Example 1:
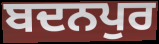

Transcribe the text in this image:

ਬਦਨਪੁਰ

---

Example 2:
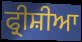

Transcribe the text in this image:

ਫ੍ਰੀਸ਼ੀਆ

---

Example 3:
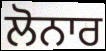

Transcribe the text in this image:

ਲੋਨਾਰ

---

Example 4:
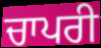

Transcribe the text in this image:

ਚਾਪਰੀ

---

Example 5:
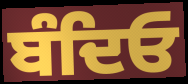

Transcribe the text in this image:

ਬੰਦਿਓ